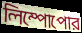
লিম্পোপোর